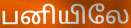
பனியிலே